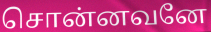
சொன்னவனே